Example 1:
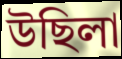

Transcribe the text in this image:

উছিলা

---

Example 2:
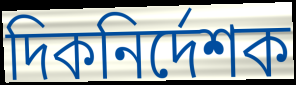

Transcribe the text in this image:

দিকনির্দেশক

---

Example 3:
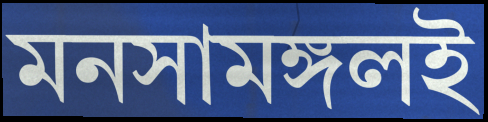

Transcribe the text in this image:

মনসামঙ্গলই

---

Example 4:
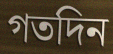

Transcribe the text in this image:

গতদিন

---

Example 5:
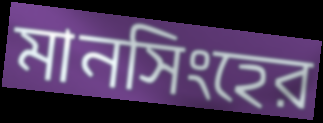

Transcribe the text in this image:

মানসিংহের